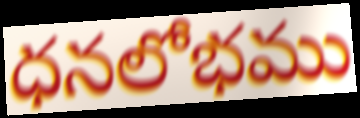
ధనలోభము